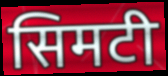
सिमटी